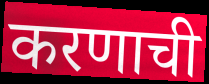
करणाची